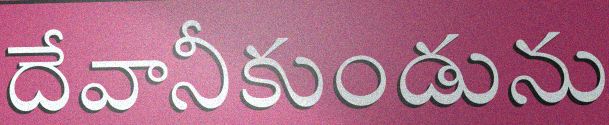
దేవానీకుండును